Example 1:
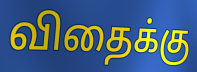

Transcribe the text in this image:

விதைக்கு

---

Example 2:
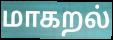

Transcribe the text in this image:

மாகறல்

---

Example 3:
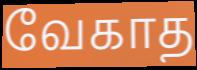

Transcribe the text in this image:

வேகாத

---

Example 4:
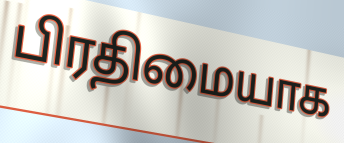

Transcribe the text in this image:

பிரதிமையாக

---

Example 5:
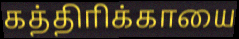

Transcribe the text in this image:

கத்திரிக்காயை